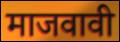
माजवावी